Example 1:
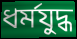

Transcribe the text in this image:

ধর্মযুদ্ধ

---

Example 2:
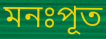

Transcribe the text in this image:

মনঃপূত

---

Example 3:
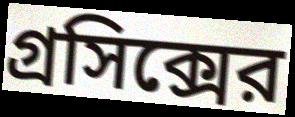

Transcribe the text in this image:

গ্রসিক্সের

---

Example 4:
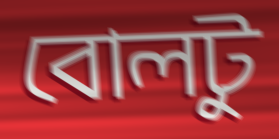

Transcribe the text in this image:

বোলটু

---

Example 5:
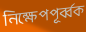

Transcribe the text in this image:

নিক্ষেপপূর্ব্বক